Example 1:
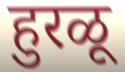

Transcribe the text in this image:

हुरळू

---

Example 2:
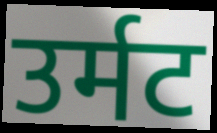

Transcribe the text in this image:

उर्मट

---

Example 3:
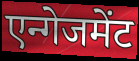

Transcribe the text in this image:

एन्गेजमेंट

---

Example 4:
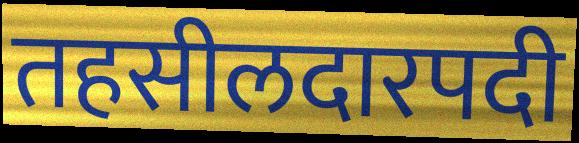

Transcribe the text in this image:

तहसीलदारपदी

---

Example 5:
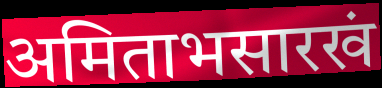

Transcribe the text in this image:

अमिताभसारखं